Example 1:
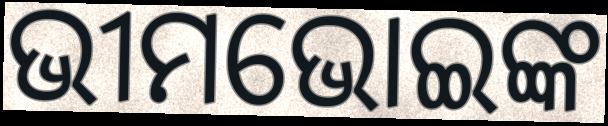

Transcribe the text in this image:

ଭୀମଭୋଇଙ୍କ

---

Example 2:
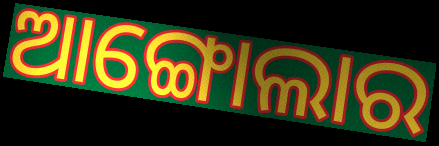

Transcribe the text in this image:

ଆଙ୍ଗୋଲାର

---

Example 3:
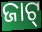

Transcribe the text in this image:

ଜାଟ୍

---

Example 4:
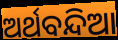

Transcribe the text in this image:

ଅର୍ଥବନ୍ଦିଆ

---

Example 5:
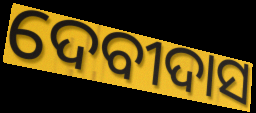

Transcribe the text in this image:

ଦେବୀଦାସ